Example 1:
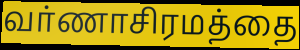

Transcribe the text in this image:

வர்ணாசிரமத்தை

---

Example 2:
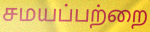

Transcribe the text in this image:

சமயப்பற்றை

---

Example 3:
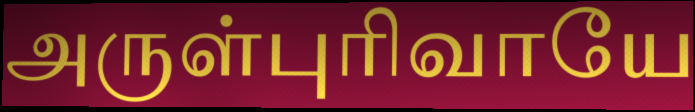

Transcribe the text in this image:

அருள்புரிவாயே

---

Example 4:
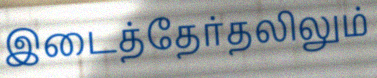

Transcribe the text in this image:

இடைத்தேர்தலிலும்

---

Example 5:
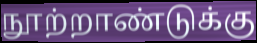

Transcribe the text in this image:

நூற்றாண்டுக்கு